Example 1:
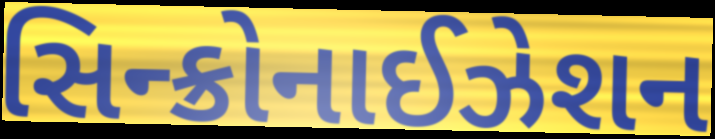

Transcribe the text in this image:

સિન્ક્રોનાઈઝેશન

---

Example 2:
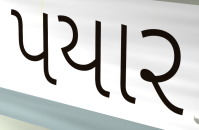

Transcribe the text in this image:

પયાર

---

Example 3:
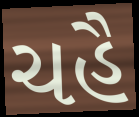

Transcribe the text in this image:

ચહૈ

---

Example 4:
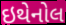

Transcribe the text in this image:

ઇથેનોલ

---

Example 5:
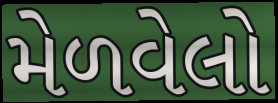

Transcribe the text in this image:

મેળવેલો